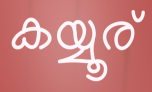
കയ്യൂര്